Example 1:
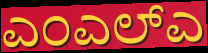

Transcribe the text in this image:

ಎಂಎಲ್ಎ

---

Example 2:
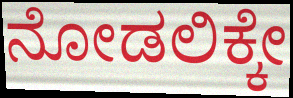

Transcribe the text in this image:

ನೋಡಲಿಕ್ಕೇ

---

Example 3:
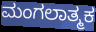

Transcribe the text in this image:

ಮಂಗಲಾತ್ಮಕ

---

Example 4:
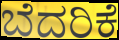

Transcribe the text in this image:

ಬೆದರಿಕೆ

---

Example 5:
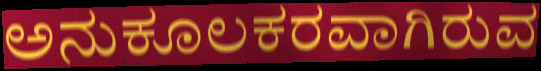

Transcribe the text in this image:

ಅನುಕೂಲಕರವಾಗಿರುವ